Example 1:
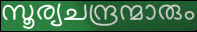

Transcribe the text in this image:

സൂര്യചന്ദ്രന്മാരും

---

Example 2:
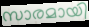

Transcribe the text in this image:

സാരമായി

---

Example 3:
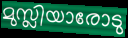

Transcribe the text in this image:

മുസ്ലിയാരോടു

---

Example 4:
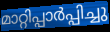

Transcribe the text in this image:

മാറ്റിപ്പാർപ്പിച്ചു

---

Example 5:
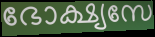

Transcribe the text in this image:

ഭോക്ഷ്യസേ